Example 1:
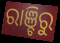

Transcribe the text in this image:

ରାଞ୍ଚିରୁ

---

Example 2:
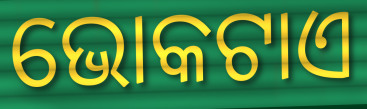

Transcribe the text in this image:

ଭୋକଟାଏ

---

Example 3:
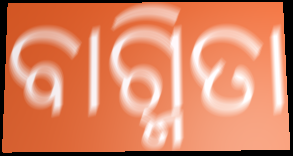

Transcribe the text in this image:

ବାଗ୍ମିତା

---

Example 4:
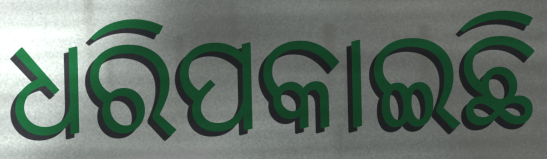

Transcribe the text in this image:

ଧରିପକାଇଛି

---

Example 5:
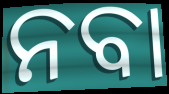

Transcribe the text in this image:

ନବା